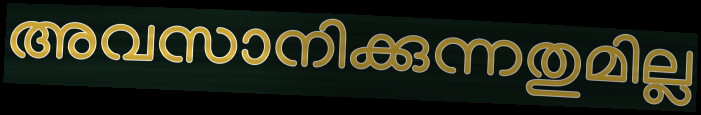
അവസാനിക്കുന്നതുമില്ല